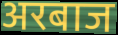
अरबाज